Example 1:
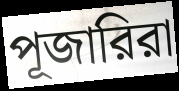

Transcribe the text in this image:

পূজারিরা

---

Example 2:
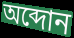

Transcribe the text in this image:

অব্দোন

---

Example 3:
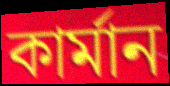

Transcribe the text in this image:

কার্মান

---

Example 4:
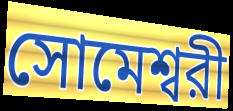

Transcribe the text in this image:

সোমেশ্বরী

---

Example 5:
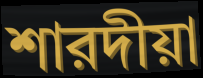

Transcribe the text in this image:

শারদীয়া